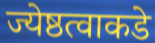
ज्येष्ठत्वाकडे